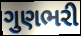
ગુણભરી